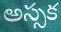
అస్సక